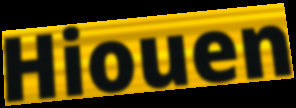
Hiouen